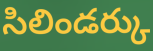
సిలిండర్కు